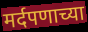
मर्दपणाच्या